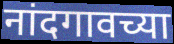
नांदगावच्या